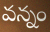
వన్నం